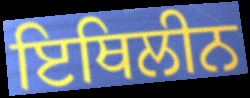
ਇਥਿਲੀਨ